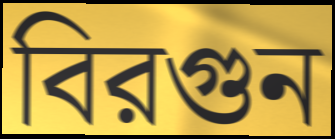
বিরগুন